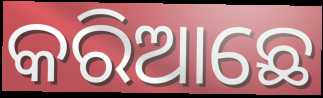
କରିଆଛେ